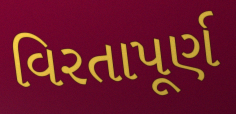
વિરતાપૂર્ણ